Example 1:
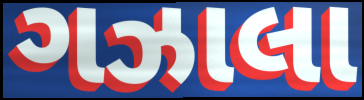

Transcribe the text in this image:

ગઝાલા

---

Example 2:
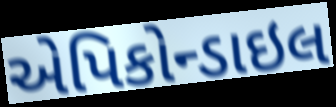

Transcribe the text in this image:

એપિકોન્ડાઇલ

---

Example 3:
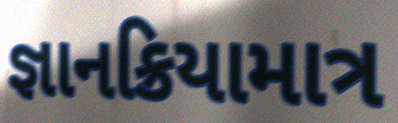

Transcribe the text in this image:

જ્ઞાનક્રિયામાત્ર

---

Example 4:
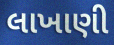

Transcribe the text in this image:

લાખાણી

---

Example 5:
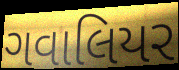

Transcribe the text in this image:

ગવાલિયર